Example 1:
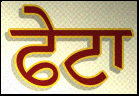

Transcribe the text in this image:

ਫੇਟਾ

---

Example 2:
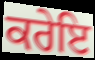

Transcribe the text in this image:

ਕਰੇਇ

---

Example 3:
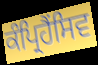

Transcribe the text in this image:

ਕੰਪ੍ਰਿਹੈਂਸਿਵ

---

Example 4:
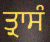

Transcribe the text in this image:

ਤ੍ਰਾਸੰ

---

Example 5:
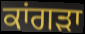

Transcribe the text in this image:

ਕਾਂਗਡ਼ਾ